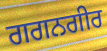
ਗਗਨਗੀਰ